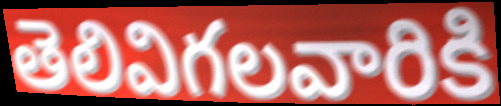
తెలివిగలవారికి